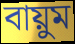
বায়ুম